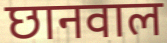
छानवाल